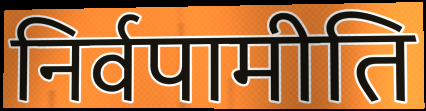
निर्वपामीति